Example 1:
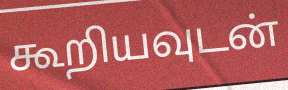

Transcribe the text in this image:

கூறியவுடன்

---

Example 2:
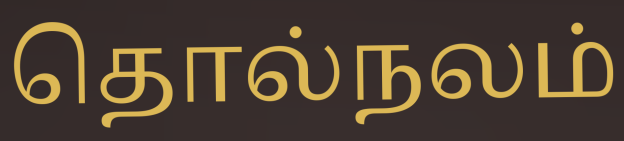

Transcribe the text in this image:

தொல்நலம்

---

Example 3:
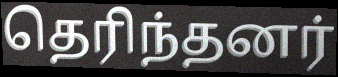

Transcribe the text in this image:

தெரிந்தனர்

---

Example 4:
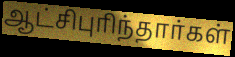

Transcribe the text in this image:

ஆட்சிபுரிந்தார்கள்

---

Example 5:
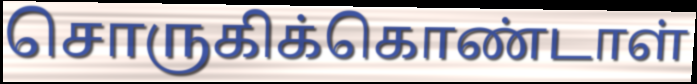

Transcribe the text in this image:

சொருகிக்கொண்டாள்